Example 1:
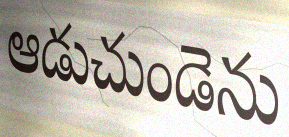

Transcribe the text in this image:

ఆడుచుండెను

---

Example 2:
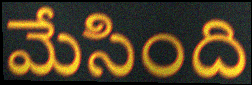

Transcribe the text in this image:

మేసింది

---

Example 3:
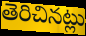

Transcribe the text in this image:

తెరిచినట్లు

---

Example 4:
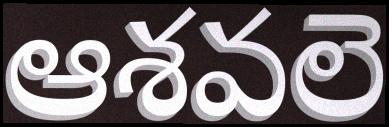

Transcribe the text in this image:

ఆశవలె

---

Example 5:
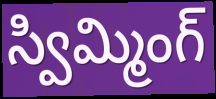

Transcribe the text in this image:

స్విమ్మింగ్